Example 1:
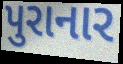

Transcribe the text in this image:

પુરાનાર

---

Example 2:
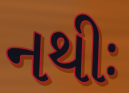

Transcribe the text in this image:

નથીઃ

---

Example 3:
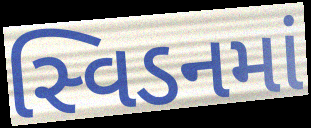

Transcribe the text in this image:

સ્વિડનમાં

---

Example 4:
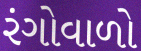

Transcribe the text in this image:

રંગોવાળો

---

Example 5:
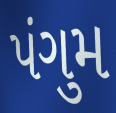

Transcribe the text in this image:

પંગુમ